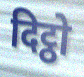
दिट्ठो